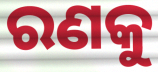
ରଣକୁ